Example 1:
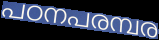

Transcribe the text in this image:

പഠനപരമ്പര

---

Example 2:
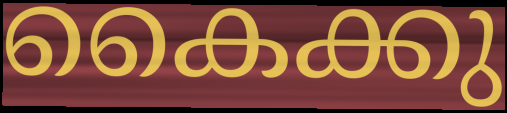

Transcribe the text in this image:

കൈക്കു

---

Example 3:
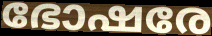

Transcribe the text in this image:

ഭോഷരേ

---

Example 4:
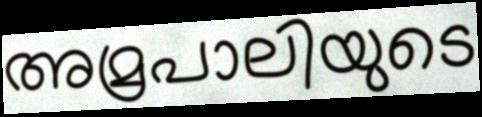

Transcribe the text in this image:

അമ്രപാലിയുടെ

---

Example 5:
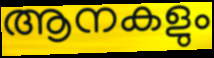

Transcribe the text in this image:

ആനകളും